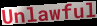
Unlawful